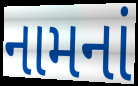
નામનાં